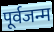
पूर्वजन्म